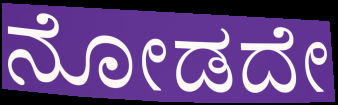
ನೋಡದೇ